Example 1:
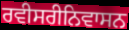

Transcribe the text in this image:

ਰਵੀਸਰੀਨਿਵਾਸਨ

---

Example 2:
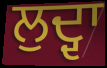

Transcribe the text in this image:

ਲੁਦ੍ਦਾ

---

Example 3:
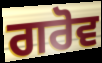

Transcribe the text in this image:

ਗਰੋਵ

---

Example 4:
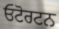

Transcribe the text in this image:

ਓਟੋਰਟਨ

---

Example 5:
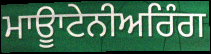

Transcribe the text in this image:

ਮਾਊਾਟੇਨੀਅਰਿੰਗ